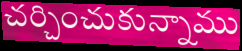
చర్చించుకున్నాము